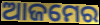
ଆଜମେର